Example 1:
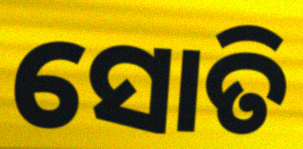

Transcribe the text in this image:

ସୋତି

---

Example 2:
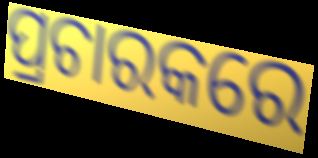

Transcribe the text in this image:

ପ୍ରଚାରକରେ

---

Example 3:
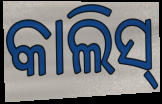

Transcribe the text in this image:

କାଲିସ୍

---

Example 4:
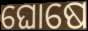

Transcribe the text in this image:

ଘୋଷେ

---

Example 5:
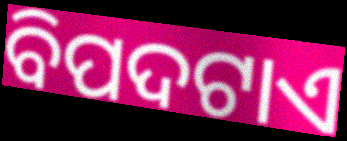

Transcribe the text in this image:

ବିପଦଟାଏ